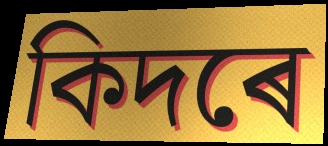
কিদৰে